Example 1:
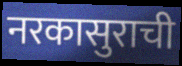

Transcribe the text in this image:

नरकासुराची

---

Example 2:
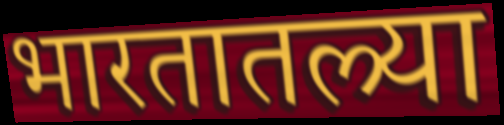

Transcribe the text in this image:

भारतातल्या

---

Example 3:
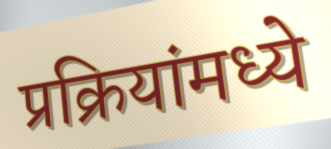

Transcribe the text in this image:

प्रक्रियांमध्ये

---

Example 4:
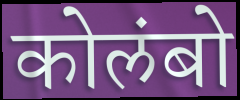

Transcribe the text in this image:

कोलंबो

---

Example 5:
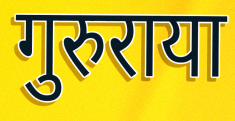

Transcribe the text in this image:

गुरुराया